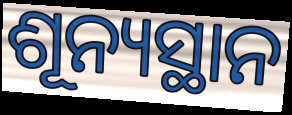
ଶୂନ୍ୟସ୍ଥାନ